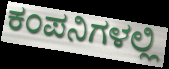
ಕಂಪನಿಗಳಲ್ಲಿ